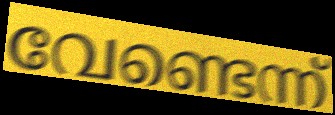
വേണ്ടെന്ന്